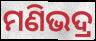
ମଣିଭଦ୍ର